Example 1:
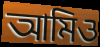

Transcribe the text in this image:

আমিও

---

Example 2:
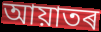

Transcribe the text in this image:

আয়াতৰ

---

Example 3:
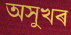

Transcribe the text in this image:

অসুখৰ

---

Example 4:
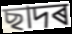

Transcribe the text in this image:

ছাদৰ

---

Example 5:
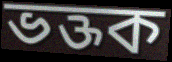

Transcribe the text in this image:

ভক্তক